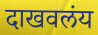
दाखवलंय